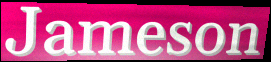
Jameson